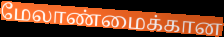
மேலாண்மைக்கான